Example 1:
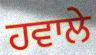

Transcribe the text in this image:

ਹਵਾਲੇ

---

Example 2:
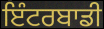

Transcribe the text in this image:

ਇੰਟਰਬਾਡੀ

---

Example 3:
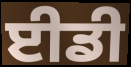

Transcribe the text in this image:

ਈਡੀ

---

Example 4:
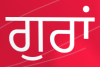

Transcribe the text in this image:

ਗੁਰਾਂ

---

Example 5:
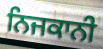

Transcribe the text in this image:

ਨਿਜਕਾਨੀ